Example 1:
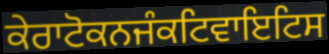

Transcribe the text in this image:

ਕੇਰਾਟੋਕਨਜੰਕਟਿਵਾਇਟਿਸ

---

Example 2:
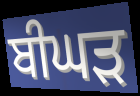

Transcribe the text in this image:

ਬੀਘੜ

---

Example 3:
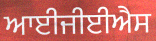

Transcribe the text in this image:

ਆਈਜੀਈਐਸ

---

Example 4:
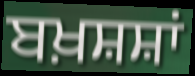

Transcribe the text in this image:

ਬਖ਼ਸ਼ਸ਼ਾਂ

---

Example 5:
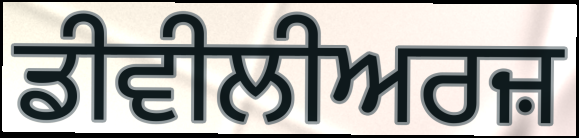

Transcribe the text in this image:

ਡੀਵੀਲੀਅਰਜ਼